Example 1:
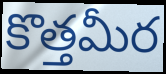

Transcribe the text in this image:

కొత్తమీర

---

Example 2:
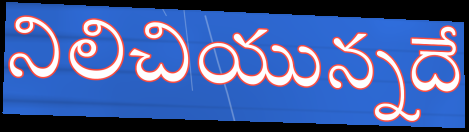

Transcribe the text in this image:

నిలిచియున్నదే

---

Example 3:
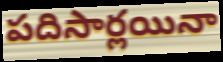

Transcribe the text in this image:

పదిసార్లయినా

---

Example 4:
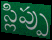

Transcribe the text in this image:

స్లిప్పు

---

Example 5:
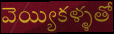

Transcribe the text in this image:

వెయ్యికళ్ళతో